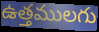
ఉత్తములగు